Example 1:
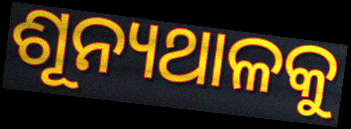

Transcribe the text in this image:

ଶୂନ୍ୟଥାଳକୁ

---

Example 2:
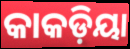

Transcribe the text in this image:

କାକଡ଼ିୟା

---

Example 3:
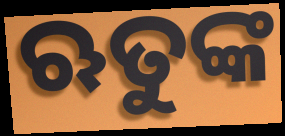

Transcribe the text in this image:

ଋତୁଙ୍କ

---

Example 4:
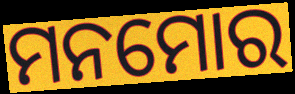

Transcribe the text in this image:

ମନମୋର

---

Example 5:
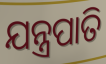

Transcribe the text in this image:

ଯନ୍ତ୍ରପାତି